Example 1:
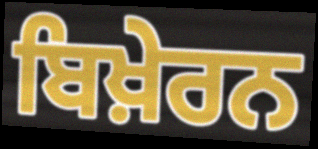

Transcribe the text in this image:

ਬਿਖ਼ੇਰਨ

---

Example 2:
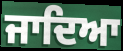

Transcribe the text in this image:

ਜਾਦਿਆ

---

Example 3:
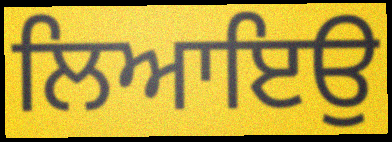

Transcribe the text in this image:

ਲਿਆਇਉ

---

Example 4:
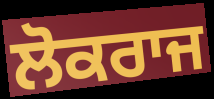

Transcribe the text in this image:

ਲੋਕਰਾਜ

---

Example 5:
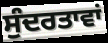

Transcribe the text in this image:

ਸੁੰਦਰਤਾਵਾਂ